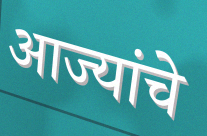
आज्यांचे